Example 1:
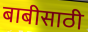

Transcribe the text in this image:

बाबीसाठी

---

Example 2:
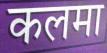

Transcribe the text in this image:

कलमा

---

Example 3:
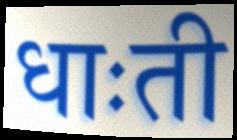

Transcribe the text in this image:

धाःती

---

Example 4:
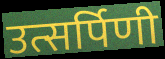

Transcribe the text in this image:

उत्सर्पिणी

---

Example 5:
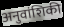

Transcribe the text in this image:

अनुवांशिकी